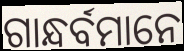
ଗାନ୍ଧର୍ବମାନେ